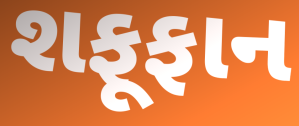
શફૂફાન